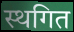
स्थगित